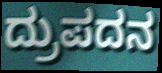
ದ್ರುಪದನ